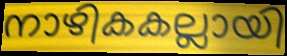
നാഴികകല്ലായി